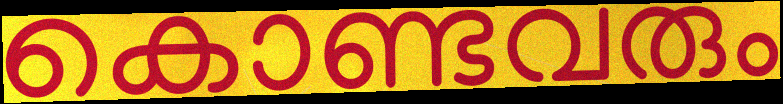
കൊണ്ടവരും